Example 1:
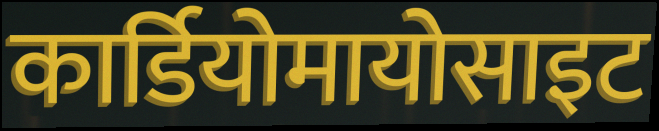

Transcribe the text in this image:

कार्डियोमायोसाइट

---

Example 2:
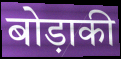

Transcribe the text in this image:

बोड़ाकी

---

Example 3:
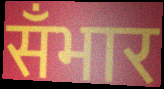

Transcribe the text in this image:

सँभार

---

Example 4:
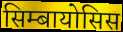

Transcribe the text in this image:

सिम्बायोसिस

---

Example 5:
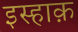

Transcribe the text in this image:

इस्हाक़